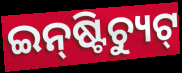
ଇନ୍‌ଷ୍ଟିଚ୍ୟୁଟ୍